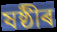
ষষ্ঠীৰ